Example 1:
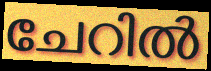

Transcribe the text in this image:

ചേറിൽ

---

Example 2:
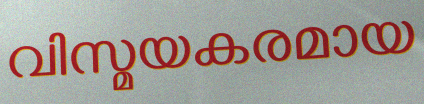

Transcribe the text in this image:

വിസ്മയകരമായ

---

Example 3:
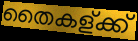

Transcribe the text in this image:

തൈകള്ക്ക്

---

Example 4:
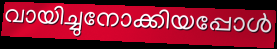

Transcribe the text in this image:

വായിച്ചുനോക്കിയപ്പോൾ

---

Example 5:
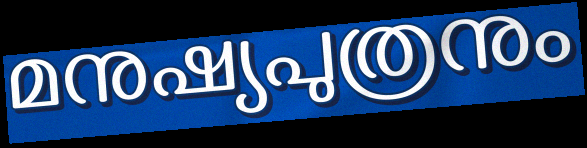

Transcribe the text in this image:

മനുഷ്യപുത്രനും